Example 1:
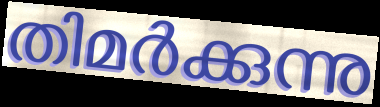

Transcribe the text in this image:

തിമർക്കുന്നു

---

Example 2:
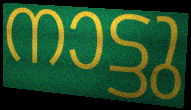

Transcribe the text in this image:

നാട്ടു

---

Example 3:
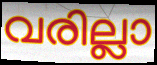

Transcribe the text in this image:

വരില്ലാ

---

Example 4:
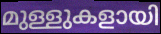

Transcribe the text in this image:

മുള്ളുകളായി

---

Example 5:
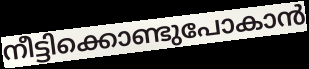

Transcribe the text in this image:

നീട്ടിക്കൊണ്ടുപോകാൻ